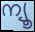
ന്യൂ